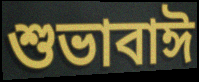
শুভাবাঈ